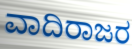
ವಾದಿರಾಜರ